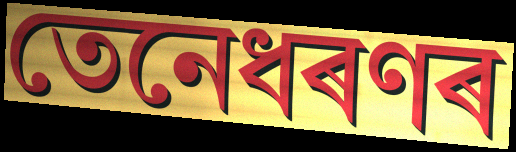
তেনেধৰণৰ